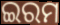
ଇରମ